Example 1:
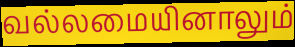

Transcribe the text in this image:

வல்லமையினாலும்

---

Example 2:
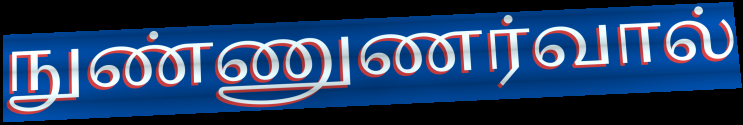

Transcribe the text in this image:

நுண்ணுணர்வால்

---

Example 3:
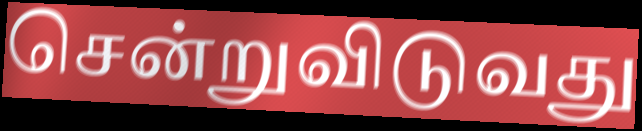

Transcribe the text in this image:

சென்றுவிடுவது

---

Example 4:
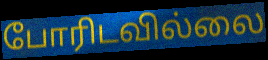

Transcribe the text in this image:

போரிடவில்லை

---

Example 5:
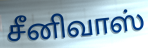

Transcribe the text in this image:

சீனிவாஸ்